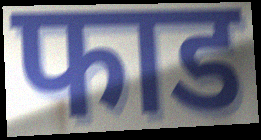
फाड